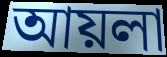
আয়লা